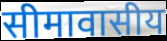
सीमावासीय